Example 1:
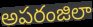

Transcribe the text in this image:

అపరంజిలా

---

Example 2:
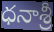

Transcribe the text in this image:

ధనాశ్రీ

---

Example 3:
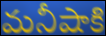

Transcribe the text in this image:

మనీషాకి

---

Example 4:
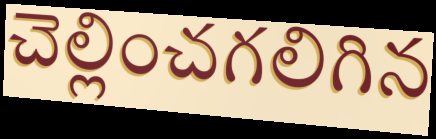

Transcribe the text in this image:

చెల్లించగలిగిన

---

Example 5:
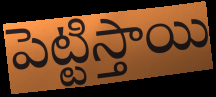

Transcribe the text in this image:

పెట్టిస్తాయి